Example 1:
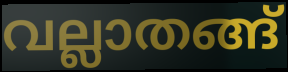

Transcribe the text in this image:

വല്ലാതങ്ങ്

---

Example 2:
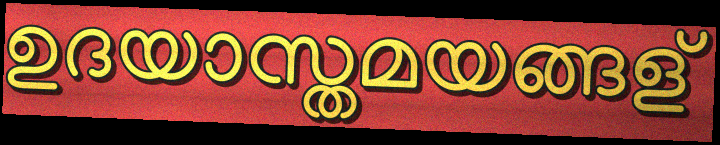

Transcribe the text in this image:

ഉദയാസ്തമയങ്ങള്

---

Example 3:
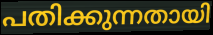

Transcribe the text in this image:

പതിക്കുന്നതായി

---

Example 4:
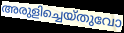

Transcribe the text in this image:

അരുളിച്ചെയ്തുവോ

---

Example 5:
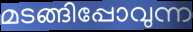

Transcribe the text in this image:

മടങ്ങിപ്പോവുന്ന